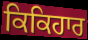
ਕਿਕਿਹਾਰ